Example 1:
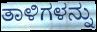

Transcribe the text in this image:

ತಾಳಿಗಳನ್ನು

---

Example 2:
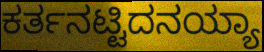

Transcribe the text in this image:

ಕರ್ತನಟ್ಟಿದನಯ್ಯಾ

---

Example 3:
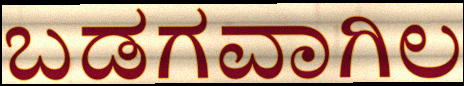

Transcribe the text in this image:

ಬಡಗವಾಗಿಲ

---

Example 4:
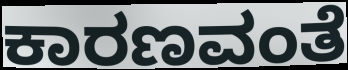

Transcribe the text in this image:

ಕಾರಣವಂತೆ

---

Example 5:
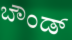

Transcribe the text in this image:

ಬೌಂಡ್